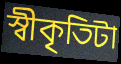
স্বীকৃতিটা